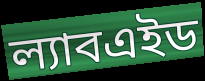
ল্যাবএইড